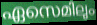
ഏസെമിലും